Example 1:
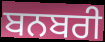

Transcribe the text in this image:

ਬਨਬਰੀ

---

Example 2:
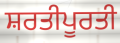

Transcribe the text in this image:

ਸ਼ਰਤੀਪੂਰਤੀ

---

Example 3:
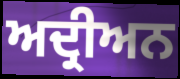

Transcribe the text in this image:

ਅਦ੍ਰੀਅਨ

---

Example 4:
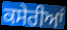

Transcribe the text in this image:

ਕਸੇਰੀਆਂ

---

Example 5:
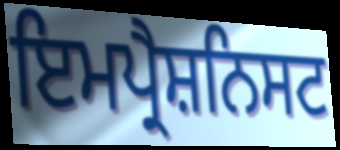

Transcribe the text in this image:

ਇਮਪ੍ਰੈਸ਼ਨਿਸਟ